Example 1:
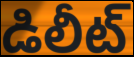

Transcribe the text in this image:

డిలీట్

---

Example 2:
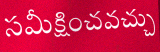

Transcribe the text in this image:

సమీక్షించవచ్చు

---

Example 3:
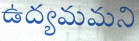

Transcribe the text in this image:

ఉద్యమమని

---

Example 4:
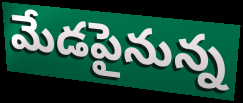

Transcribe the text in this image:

మేడపైనున్న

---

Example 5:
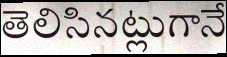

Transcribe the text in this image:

తెలిసినట్లుగానే